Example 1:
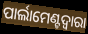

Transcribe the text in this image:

ପାର୍ଲାମେଣ୍ଟଦ୍ୱାରା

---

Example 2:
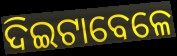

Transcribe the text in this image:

ଦିଇଟାବେଳେ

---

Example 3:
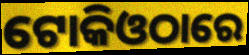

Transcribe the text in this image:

ଟୋକିଓଠାରେ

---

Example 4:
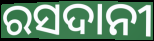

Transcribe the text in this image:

ରସଦାନୀ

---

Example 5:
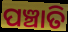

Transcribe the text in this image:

ପଞ୍ଚାତି